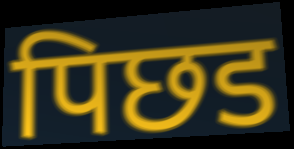
पिछड